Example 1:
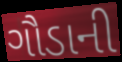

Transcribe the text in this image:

ગૌડાની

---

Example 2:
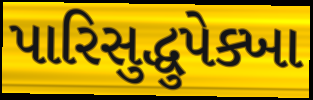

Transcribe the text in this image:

પારિસુદ્ધુપેક્ખા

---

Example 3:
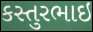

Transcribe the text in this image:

કસ્તુરભાઇ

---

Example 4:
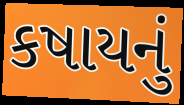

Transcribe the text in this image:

કષાયનું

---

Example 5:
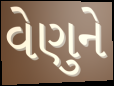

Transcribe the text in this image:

વેણુને